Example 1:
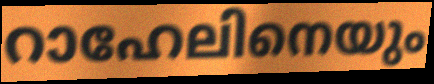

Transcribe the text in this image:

റാഹേലിനെയും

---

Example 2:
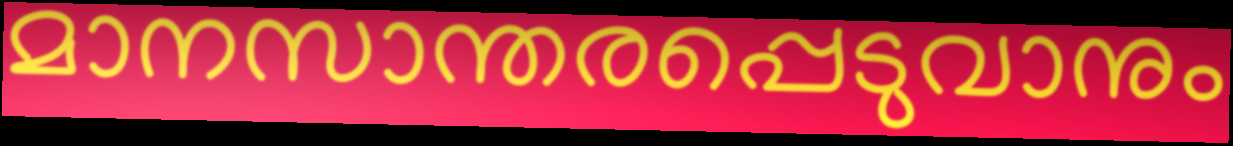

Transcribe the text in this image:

മാനസാന്തരപ്പെടുവാനും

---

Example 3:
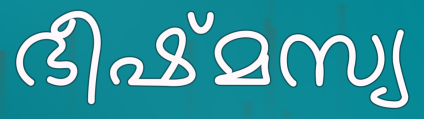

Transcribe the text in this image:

ഭീഷ്മസ്യ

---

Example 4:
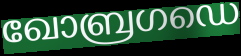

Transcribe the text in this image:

ഖോബ്രഗഡെ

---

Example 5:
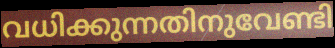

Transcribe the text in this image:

വധിക്കുന്നതിനുവേണ്ടി